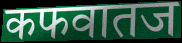
कफवातज